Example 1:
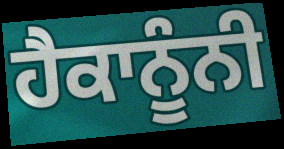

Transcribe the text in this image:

ਹੈਕਾਨੂੰਨੀ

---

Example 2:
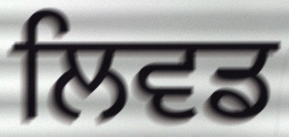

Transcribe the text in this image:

ਲਿਵਡ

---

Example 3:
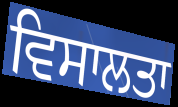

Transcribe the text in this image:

ਵਿਸਾਲਤਾ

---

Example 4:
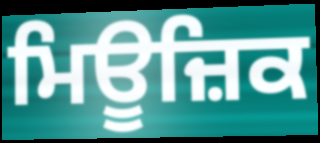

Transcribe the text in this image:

ਮਿਊਜ਼ਿਕ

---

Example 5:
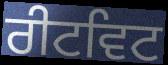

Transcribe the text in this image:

ਰੀਟਵਿਟ